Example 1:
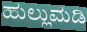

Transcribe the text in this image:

ಹುಲ್ಲುಮಡಿ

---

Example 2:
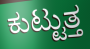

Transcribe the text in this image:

ಕುಟ್ಟುತ್ತ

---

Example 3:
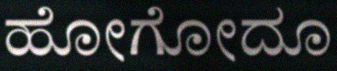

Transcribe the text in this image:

ಹೋಗೋದೂ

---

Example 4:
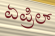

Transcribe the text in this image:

ಏಪ್ರಿಲ್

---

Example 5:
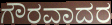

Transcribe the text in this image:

ಗೌರವಾದರ